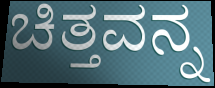
ಚಿತ್ತವನ್ನ